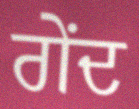
ਗੇਂਦ